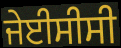
ਜੇਈਸੀਸੀ